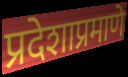
प्रदेशाप्रमाणे